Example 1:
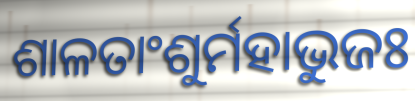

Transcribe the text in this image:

ଶାଳତାଂଶୁର୍ମହାଭୁଜଃ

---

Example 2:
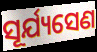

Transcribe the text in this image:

ସୂର୍ଯ୍ୟସେଣ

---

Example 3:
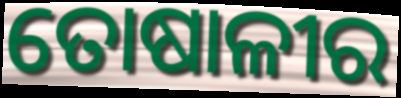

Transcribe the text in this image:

ତୋଷାଳୀର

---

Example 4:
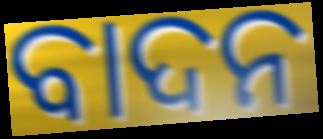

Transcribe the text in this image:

ବାଦନ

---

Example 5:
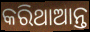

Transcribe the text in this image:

କରିଥାଆନ୍ତ